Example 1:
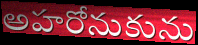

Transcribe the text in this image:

అహరోనుకును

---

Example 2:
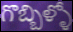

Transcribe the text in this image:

గొబ్బిళ్ళో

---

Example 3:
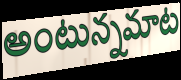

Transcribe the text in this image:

అంటున్నమాట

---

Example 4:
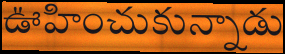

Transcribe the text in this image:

ఊహించుకున్నాడు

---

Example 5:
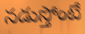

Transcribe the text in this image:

నడుస్తోంటే